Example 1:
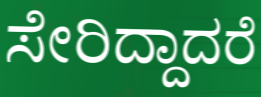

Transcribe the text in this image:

ಸೇರಿದ್ದಾದರೆ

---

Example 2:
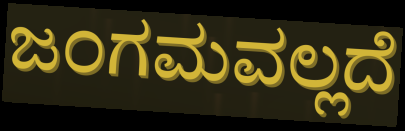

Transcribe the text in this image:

ಜಂಗಮವಲ್ಲದೆ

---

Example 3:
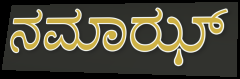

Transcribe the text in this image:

ನಮಾಝ್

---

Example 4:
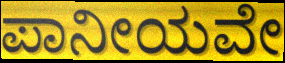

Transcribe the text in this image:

ಪಾನೀಯವೇ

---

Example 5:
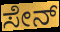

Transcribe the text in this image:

ಸೇನ್